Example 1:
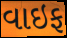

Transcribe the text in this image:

વાઇફ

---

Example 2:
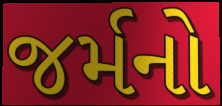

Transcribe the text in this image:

જર્મનો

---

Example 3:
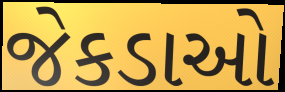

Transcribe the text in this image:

જેકડાઓ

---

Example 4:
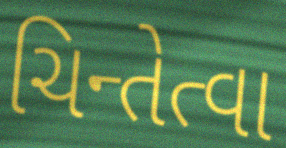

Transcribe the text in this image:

ચિન્તેત્વા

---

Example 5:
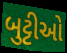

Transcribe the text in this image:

બુટ્ટીઓ